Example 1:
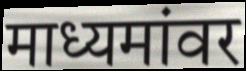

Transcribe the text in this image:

माध्यमांवर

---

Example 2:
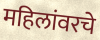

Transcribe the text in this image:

महिलांवरचे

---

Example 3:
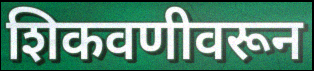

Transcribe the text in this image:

शिकवणीवरून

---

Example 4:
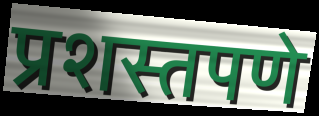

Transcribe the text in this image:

प्रशस्तपणे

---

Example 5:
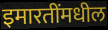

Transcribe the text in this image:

इमारतींमधील